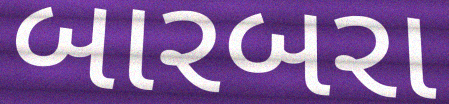
બારબરા